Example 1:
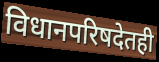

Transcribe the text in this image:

विधानपरिषदेतही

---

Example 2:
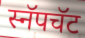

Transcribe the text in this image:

स्नॅपचॅट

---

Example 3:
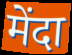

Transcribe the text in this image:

मेंदा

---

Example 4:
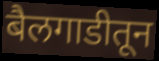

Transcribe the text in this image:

बैलगाडीतून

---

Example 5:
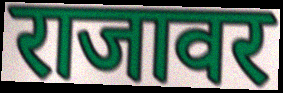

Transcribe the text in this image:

राजावर